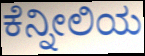
ಕೆನ್ನೀಲಿಯ